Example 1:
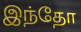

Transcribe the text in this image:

இந்தோ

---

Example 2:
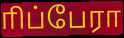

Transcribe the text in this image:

ரிப்பேரா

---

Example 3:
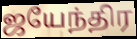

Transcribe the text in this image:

ஜயேந்திர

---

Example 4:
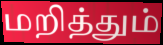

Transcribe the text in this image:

மறித்தும்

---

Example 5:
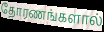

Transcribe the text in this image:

தோரணங்களால்